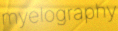
myelography